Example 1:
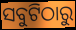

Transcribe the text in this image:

ସବୁଟିଠାରୁ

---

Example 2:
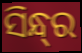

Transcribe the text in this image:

ସିନ୍ଧ୍‌ର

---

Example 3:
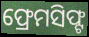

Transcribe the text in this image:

ଫ୍ରେମସିଫ୍ଟ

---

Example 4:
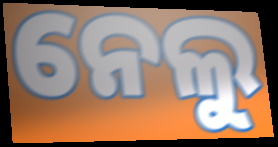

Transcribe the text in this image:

ନେଲୁ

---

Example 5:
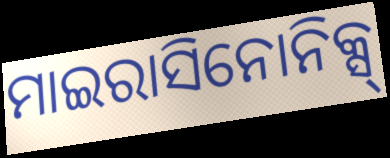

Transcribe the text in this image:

ମାଇରାସିନୋନିକ୍ସ୍